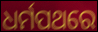
ଧର୍ମପଥରେ